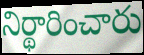
నిర్థారించారు